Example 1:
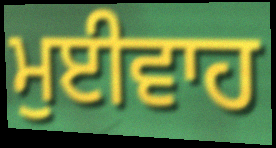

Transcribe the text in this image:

ਮੁਈਵਾਹ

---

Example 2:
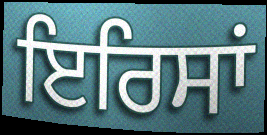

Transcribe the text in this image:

ਇਰਿਸਾਂ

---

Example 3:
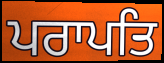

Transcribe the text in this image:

ਪਰਾਪਤਿ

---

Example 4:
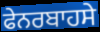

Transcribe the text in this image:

ਫੇਨਰਬਾਹਸੇ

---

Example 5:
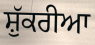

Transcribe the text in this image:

ਸ਼ੁੱਕਰੀਆ